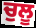
ਚੁਲੂ